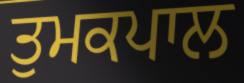
ਤੁਮਕਪਾਲ